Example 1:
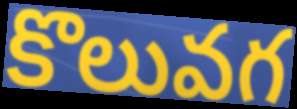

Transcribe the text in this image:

కొలువగ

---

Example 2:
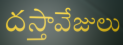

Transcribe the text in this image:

దస్తావేజులు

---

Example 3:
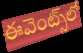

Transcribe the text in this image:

ఈవెంట్స్‌లో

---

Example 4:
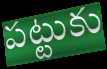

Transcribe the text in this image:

పట్టుకు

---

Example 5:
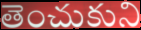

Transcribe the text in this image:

తెంచుకుని